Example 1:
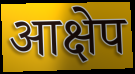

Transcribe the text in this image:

आक्षेप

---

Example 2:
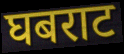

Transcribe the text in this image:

घबराट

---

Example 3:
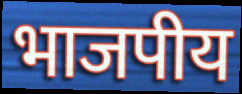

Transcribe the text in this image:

भाजपीय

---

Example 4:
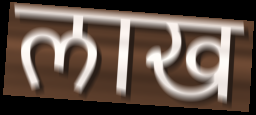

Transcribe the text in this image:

लाख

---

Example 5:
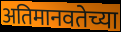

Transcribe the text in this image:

अतिमानवतेच्या